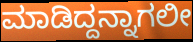
ಮಾಡಿದ್ದನ್ನಾಗಲೀ